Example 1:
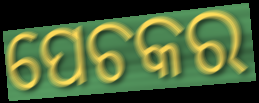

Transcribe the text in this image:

ପେଚକର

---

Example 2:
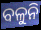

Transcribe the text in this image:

ବଳୁନି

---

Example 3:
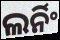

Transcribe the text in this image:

ଲର୍ନିଂ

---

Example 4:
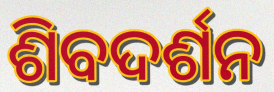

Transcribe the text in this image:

ଶିବଦର୍ଶନ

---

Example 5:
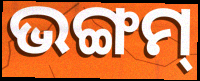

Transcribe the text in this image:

ଭଙ୍ଗମ୍